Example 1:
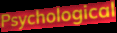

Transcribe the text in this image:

Psychological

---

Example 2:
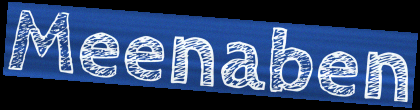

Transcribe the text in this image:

Meenaben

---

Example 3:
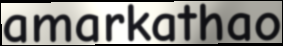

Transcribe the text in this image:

amarkathao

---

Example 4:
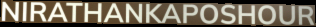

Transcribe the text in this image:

NIRATHANKAPOSHOUR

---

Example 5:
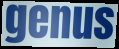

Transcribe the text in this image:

genus